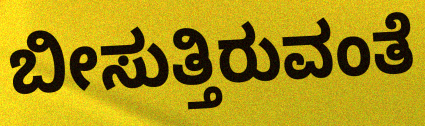
ಬೀಸುತ್ತಿರುವಂತೆ